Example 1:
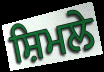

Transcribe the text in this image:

ਸ਼ਿਮਲੇ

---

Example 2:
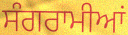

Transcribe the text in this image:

ਸੰਗਰਾਮੀਆਂ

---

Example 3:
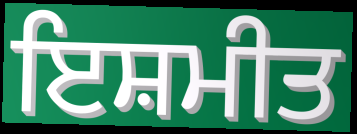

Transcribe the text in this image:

ਇਸ਼ਮੀਤ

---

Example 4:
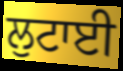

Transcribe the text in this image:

ਲੁਟਾਈ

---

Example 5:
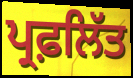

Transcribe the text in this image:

ਪ੍ਰਫ਼ਲਿੱਤ